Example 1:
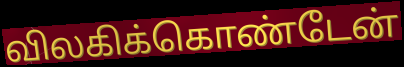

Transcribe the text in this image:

விலகிக்கொண்டேன்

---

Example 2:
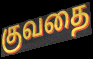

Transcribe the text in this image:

குவதை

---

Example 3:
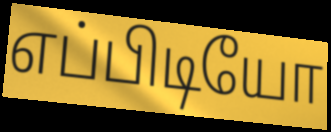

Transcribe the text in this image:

எப்பிடியோ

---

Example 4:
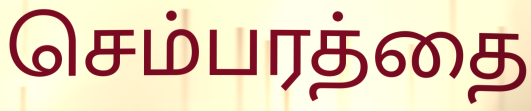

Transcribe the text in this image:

செம்பரத்தை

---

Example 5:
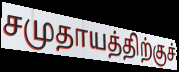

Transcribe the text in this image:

சமுதாயத்திற்குச்